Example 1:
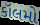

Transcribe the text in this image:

કૉલમો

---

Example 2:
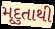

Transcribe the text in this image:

મૃદુતાથી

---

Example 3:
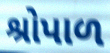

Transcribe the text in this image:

શ્રોપાળ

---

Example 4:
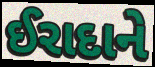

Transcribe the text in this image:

ઈરાદાને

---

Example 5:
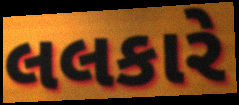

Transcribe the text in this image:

લલકારે